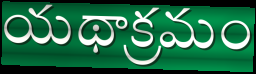
యథాక్రమం